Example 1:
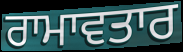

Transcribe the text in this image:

ਰਾਮਾਵਤਾਰ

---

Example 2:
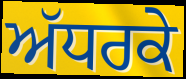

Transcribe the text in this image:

ਅੱਧਰਕੇ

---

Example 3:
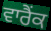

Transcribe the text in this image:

ਵਾਰੈਂਕ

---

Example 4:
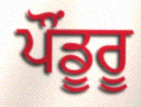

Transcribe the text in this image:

ਪੌਂਡੂਰੂ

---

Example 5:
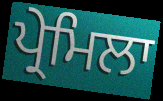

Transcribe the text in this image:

ਪ੍ਰੇਮਿਲਾ